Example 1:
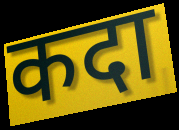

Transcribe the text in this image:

कदा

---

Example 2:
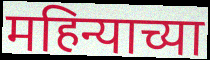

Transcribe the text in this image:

महिन्याच्या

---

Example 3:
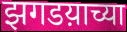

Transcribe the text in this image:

झगडय़ाच्या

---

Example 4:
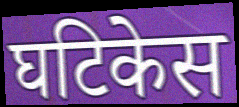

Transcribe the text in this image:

घटिकेस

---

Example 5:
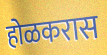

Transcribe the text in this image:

होळकरास